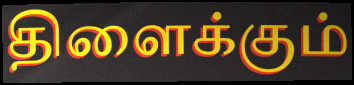
திளைக்கும்